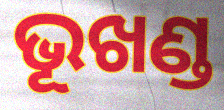
ଭୂଖଣ୍ଡ